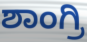
ಶಾಂಗ್ರಿ